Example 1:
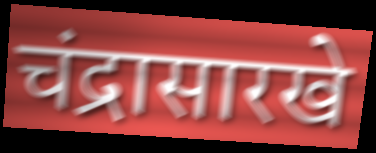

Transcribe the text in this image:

चंद्रासारखे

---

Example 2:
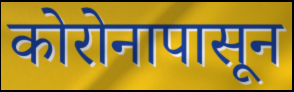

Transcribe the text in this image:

कोरोनापासून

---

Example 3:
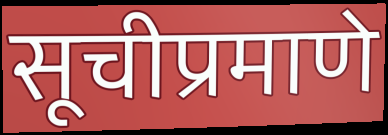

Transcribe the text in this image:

सूचीप्रमाणे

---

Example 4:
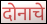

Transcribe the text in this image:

दोनाचे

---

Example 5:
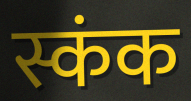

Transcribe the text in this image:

स्कंक